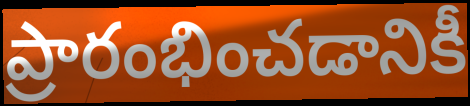
ప్రారంభించడానికీ